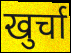
खुर्चा